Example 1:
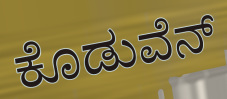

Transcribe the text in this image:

ಕೊಡುವೆನ್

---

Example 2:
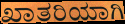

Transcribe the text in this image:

ಖಾತರಿಯಾಗಿ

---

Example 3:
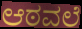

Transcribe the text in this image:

ಆಠವಲೆ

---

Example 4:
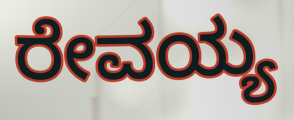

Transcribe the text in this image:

ರೇವಯ್ಯ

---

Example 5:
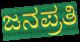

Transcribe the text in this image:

ಜನಪ್ರತಿ